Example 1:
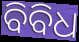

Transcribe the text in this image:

ବିବିଧ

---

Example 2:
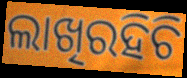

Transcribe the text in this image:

ଲାଖିରହିଚି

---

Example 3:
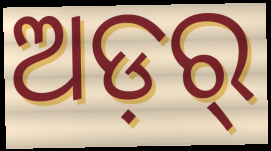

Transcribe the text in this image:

ଅଡ଼ର୍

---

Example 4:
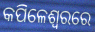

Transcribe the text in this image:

କପିଳେଶ୍ୱରରେ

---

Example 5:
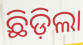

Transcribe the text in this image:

ଛିଡ଼ିଲା